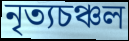
নৃত্যচঞ্চল